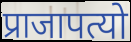
प्राजापत्यो